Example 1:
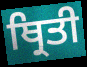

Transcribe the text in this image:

ਥ੍ਰਿਤੀ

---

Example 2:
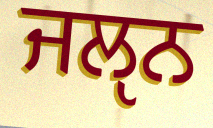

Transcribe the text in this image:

ਜਲੵਨ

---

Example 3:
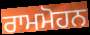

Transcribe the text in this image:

ਰਾਮਮੋਹਨ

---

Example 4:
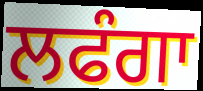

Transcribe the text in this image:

ਲਫੰਗਾ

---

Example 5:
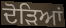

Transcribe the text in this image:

ਦੋੜਿਆਂ